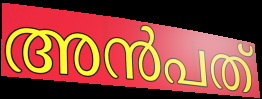
അൻപത്